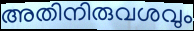
അതിനിരുവശവും